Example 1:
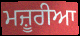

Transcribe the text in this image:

ਮਜ਼ੂਰੀਆ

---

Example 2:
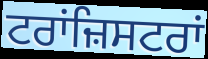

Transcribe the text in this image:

ਟਰਾਂਜ਼ਿਸਟਰਾਂ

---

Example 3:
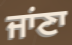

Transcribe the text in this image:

ਜਾਂਣਾ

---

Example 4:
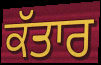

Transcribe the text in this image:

ਕੱਤਾਰ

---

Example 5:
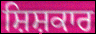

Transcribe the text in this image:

ਸ਼ਿਸ਼ਕਾਰ